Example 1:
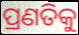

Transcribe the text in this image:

ପ୍ରଣତିକୁ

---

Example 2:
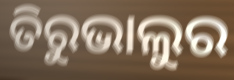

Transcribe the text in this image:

ତିରୁଭାଲୁର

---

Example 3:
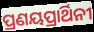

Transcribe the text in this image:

ପ୍ରଣୟପ୍ରାର୍ଥିନୀ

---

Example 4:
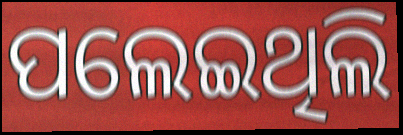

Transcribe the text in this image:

ପଲେଇଥିଲି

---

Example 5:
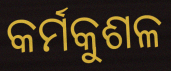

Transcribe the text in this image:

କର୍ମକୁଶଳ